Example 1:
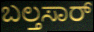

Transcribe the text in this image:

ಬಲ್ತಸಾರ್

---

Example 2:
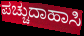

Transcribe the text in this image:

ಪಚ್ಚುದಾಹಾಸಿ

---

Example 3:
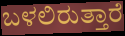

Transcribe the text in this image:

ಬಳಲಿರುತ್ತಾರೆ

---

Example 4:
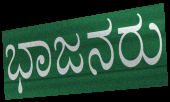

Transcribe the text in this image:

ಭಾಜನರು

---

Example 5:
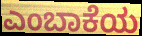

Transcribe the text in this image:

ಎಂಬಾಕೆಯ